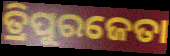
ତ୍ରିପୁରଜେତା